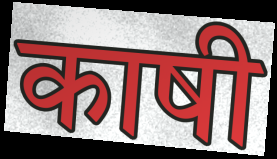
काषी